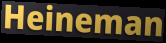
Heineman